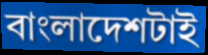
বাংলাদেশটাই